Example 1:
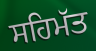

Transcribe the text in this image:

ਸਹਿਮੱਤ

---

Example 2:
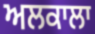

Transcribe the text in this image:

ਅਲਕਾਲਾ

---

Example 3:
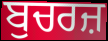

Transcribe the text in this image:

ਬੁਚਰਜ਼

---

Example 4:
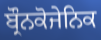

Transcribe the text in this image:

ਬ੍ਰੌਨਕੋਜੇਨਿਕ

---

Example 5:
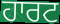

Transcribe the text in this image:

ਹਾਰਟ